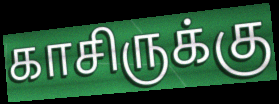
காசிருக்கு